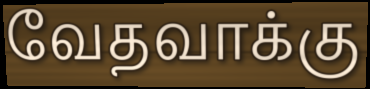
வேதவாக்கு